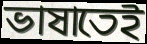
ভাষাতেই